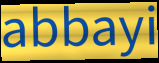
abbayi